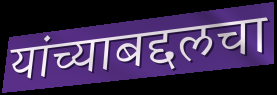
यांच्याबद्दलचा